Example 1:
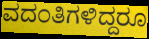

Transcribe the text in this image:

ವದಂತಿಗಳಿದ್ದರೂ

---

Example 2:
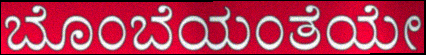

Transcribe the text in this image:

ಬೊಂಬೆಯಂತೆಯೇ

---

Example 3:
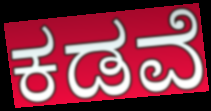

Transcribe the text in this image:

ಕಡವೆ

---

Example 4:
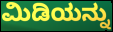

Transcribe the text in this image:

ಮಿಡಿಯನ್ನು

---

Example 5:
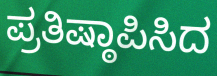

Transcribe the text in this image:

ಪ್ರತಿಷ್ಠಾಪಿಸಿದ